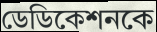
ডেডিকেশনকে